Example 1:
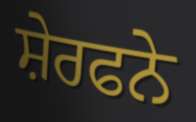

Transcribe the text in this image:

ਸ਼ੇਰਫਨੇ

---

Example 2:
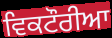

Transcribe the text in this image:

ਵਿਕਟੌਰੀਆ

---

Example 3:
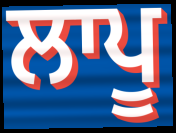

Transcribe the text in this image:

ਲਾਪੂ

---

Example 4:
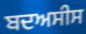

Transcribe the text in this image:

ਬਦਅਸੀਸ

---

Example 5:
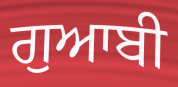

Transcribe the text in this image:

ਗੁਆਬੀ